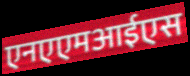
एनएएमआईएस